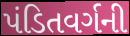
પંડિતવર્ગની